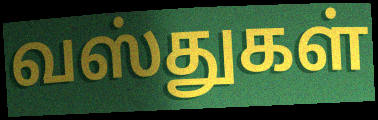
வஸ்துகள்